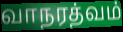
வாநரத்வம்